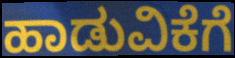
ಹಾಡುವಿಕೆಗೆ